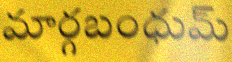
మార్గబంధుమ్